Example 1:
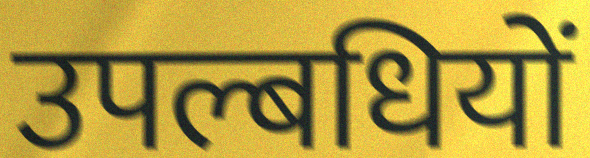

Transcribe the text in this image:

उपल्बधियों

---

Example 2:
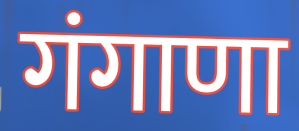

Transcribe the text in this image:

गंगाणा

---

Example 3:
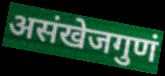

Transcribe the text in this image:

असंखेजगुणं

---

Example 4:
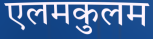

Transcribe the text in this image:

एलमकुलम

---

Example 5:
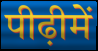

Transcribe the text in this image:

पीढ़ीमें